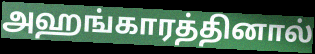
அஹங்காரத்தினால்